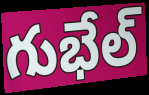
గుభేల్